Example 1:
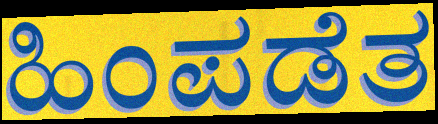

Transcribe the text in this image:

ಹಿಂಪಡೆತ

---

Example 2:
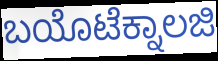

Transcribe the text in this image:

ಬಯೊಟೆಕ್ನಾಲಜಿ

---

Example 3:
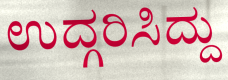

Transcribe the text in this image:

ಉದ್ಗರಿಸಿದ್ದು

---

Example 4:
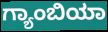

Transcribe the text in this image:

ಗ್ಯಾಂಬಿಯಾ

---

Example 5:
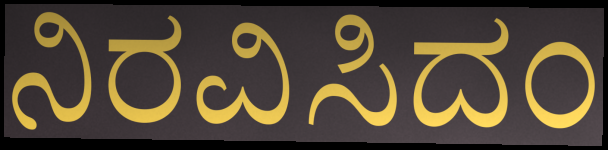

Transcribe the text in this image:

ನಿರವಿಸಿದಂ